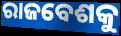
ରାଜବେଶକୁ